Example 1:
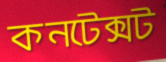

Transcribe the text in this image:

কনটেক্সট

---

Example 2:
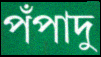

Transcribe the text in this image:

পঁপাদু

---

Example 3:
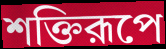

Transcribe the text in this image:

শক্তিরূপে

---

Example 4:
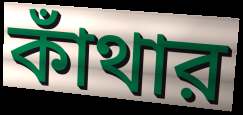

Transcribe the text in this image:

কাঁথার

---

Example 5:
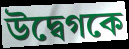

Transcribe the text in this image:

উদ্বেগকে